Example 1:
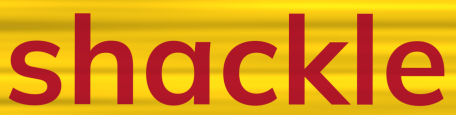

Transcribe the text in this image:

shackle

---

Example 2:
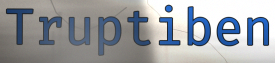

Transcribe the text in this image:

Truptiben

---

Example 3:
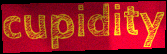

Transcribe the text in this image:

cupidity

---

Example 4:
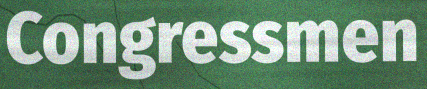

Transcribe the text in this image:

Congressmen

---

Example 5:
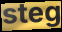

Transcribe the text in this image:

steg